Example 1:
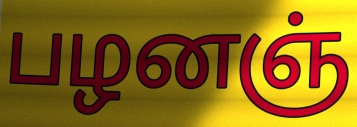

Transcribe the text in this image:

பழனஞ்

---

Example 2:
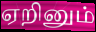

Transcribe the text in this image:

ஏறினும்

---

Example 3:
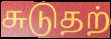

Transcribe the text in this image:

சுடுதற்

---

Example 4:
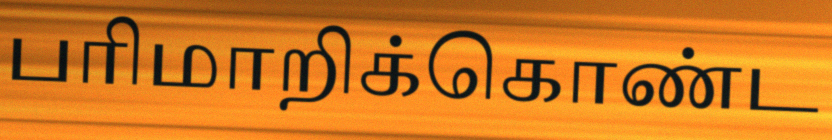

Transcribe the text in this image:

பரிமாறிக்கொண்ட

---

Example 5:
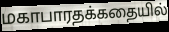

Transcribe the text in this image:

மகாபாரதக்கதையில்